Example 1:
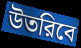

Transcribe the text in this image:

উতরিবে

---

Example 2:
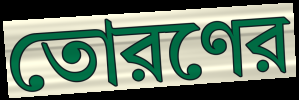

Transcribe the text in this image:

তোরণের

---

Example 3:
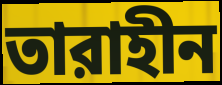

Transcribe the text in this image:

তারাহীন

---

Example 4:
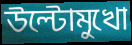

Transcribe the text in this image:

উল্টোমুখো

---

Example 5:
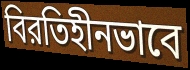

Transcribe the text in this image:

বিরতিহীনভাবে